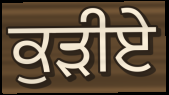
ਕੁੜੀਏ